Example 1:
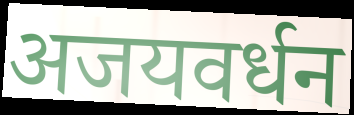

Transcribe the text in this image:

अजयवर्धन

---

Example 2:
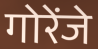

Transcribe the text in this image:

गोरेंजे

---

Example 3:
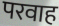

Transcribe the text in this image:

परवाह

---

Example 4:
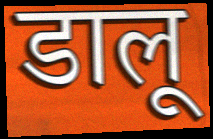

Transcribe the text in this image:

डालू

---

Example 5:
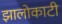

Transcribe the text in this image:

झालोकाटी